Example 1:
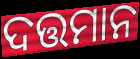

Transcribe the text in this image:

ଦତ୍ତମାନ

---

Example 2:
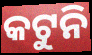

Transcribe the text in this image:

କଟୁନି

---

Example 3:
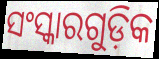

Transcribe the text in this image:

ସଂସ୍କାରଗୁଡ଼ିକ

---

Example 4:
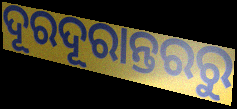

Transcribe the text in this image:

ଦୂରଦୂରାନ୍ତରରୁ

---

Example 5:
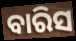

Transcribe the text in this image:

ବାରିସ